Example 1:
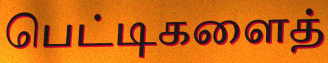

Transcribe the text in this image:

பெட்டிகளைத்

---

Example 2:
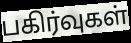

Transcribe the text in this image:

பகிர்வுகள்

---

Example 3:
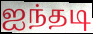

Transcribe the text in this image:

ஐந்தடி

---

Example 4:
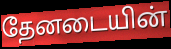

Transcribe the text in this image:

தேனடையின்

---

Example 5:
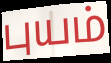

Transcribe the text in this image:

புயம்